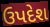
ઉપદેશ